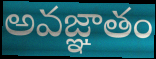
అవజ్ఞాతం